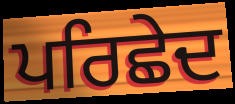
ਪਰਿਛੇਦ